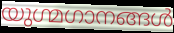
യുഗ്മഗാനങ്ങൾ